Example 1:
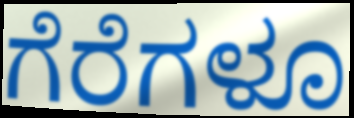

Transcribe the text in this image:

ಗೆರೆಗಳೂ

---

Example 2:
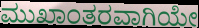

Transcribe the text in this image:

ಮುಖಾಂತರವಾಗಿಯೇ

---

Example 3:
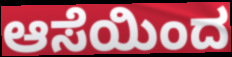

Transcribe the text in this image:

ಆಸೆಯಿಂದ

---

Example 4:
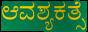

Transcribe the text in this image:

ಆವಶ್ಯಕತ್ಸೆ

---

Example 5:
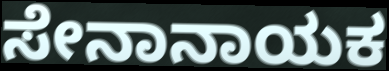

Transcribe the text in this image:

ಸೇನಾನಾಯಕ